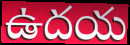
ఉదయ